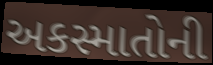
અકસ્માતોની